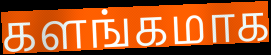
களங்கமாக